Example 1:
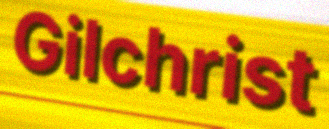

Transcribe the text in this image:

Gilchrist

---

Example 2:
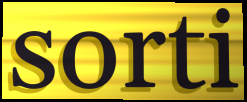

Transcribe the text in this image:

sorti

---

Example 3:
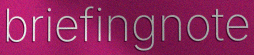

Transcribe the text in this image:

briefingnote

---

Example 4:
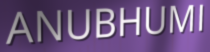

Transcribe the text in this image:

ANUBHUMI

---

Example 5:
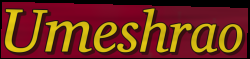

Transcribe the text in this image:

Umeshrao